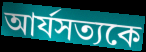
আর্যসত্যকে